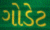
ગોડેટ